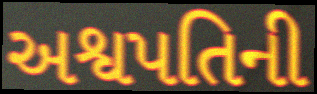
અશ્વપતિની